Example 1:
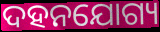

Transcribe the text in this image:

ଦହନଯୋଗ୍ୟ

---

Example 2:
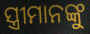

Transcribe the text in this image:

ସ୍ତ୍ରୀମାନଙ୍କୁ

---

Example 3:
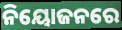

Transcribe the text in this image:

ନିୟୋଜନରେ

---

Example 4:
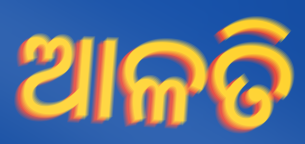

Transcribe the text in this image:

ଆଳତି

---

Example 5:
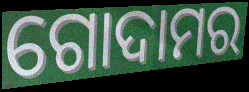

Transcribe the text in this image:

ଗୋଦାମର